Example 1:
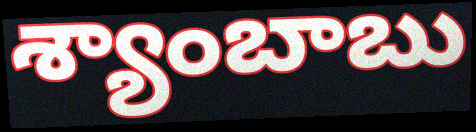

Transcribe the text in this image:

శ్యాంబాబు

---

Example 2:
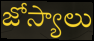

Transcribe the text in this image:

జోస్యాలు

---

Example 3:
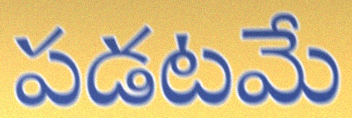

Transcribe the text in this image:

పడటమే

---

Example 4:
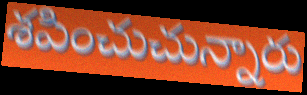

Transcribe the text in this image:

శపించుచున్నారు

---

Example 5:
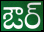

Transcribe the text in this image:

ఔర్